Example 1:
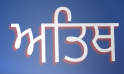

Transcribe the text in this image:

ਅਤਿਥ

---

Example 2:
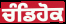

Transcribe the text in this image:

ਚੰਡਿਹੋਕ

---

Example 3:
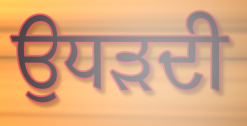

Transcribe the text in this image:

ਉਧੜਦੀ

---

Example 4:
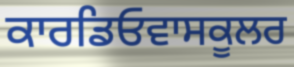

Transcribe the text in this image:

ਕਾਰਡਿਓਵਾਸਕੂਲਰ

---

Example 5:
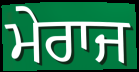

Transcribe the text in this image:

ਮੇਰਾਜ